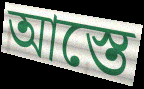
আস্তে